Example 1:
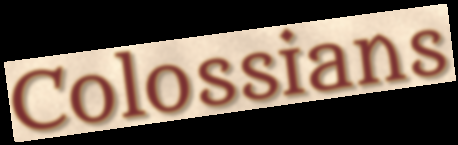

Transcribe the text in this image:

Colossians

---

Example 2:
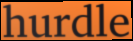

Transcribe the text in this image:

hurdle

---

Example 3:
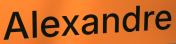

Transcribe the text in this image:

Alexandre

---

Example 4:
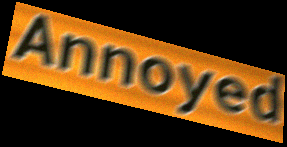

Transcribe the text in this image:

Annoyed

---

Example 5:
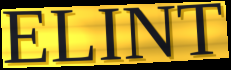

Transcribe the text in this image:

ELINT